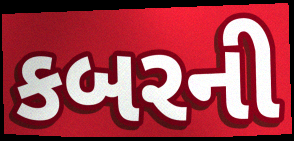
કબરની